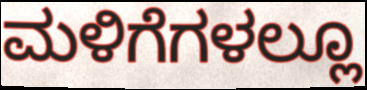
ಮಳಿಗೆಗಳಲ್ಲೂ